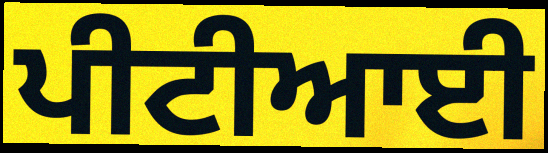
ਪੀਟੀਆਈ